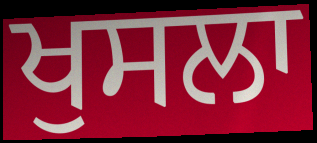
ਖੁਸਲਾ